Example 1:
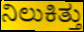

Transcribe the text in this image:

ನಿಲುಕಿತ್ತು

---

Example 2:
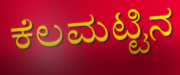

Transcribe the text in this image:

ಕೆಲಮಟ್ಟಿನ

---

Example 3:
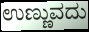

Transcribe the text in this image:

ಉಣ್ಣುವದು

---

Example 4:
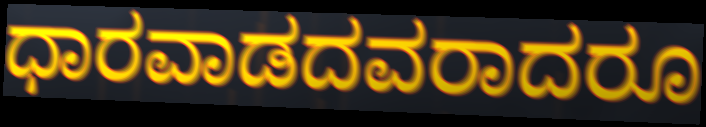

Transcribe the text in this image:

ಧಾರವಾಡದವರಾದರೂ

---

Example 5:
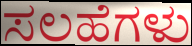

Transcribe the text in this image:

ಸಲಹೆಗಳು